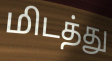
மிடத்து